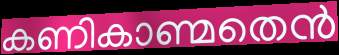
കണികാണ്മതെൻ